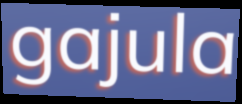
gajula